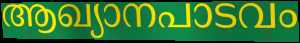
ആഖ്യാനപാടവം